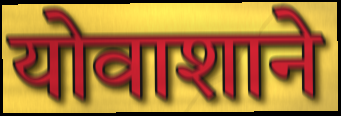
योवाशाने